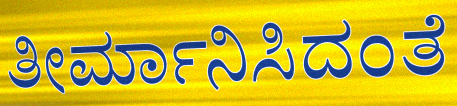
ತೀರ್ಮಾನಿಸಿದಂತೆ